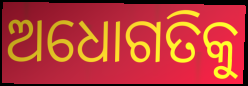
ଅଧୋଗତିକୁ